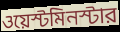
ওয়েস্টমিনস্টার